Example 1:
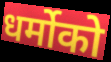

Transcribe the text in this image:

धर्मोको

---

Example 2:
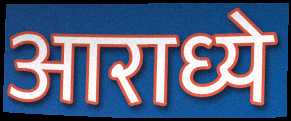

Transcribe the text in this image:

आराध्ये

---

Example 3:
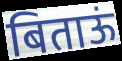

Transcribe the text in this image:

बिताऊं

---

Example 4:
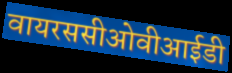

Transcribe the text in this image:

वायरससीओवीआईडी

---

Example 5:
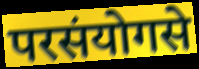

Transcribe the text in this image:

परसंयोगसे